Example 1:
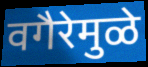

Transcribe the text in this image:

वगैरेमुळे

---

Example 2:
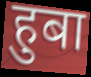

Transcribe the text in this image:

हुबा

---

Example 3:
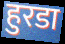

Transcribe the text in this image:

हुरडा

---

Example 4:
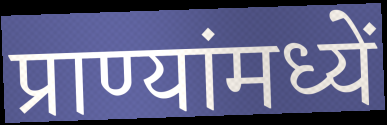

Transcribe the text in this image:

प्राण्यांमध्यें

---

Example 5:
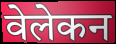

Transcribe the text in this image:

वेलेकन